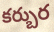
కర్బుర